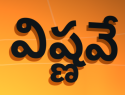
విష్ణవే